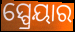
ସ୍ପ୍ରେୟାର